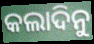
କଲାଦିନୁ